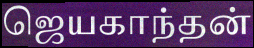
ஜெயகாந்தன்